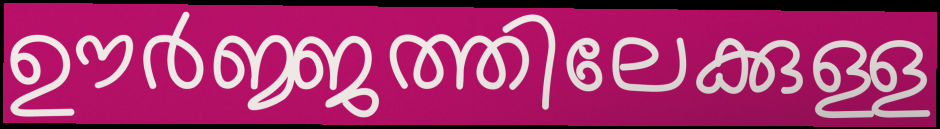
ഊർജ്ജത്തിലേക്കുള്ള